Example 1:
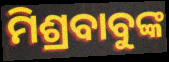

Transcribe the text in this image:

ମିଶ୍ରବାବୁଙ୍କ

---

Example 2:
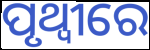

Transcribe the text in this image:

ପୃଥ୍ୱୀରେ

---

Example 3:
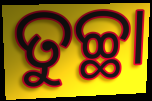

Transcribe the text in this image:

ତୁଚ୍ଛା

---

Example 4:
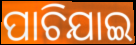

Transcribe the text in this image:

ପାଚିଯାଇ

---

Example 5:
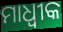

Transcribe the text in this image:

ମାଧ୍ୱୀକ